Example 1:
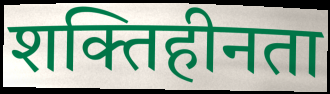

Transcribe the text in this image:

शक्तिहीनता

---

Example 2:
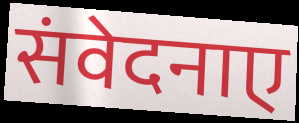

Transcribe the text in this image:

संवेदनाए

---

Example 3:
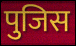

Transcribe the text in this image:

पुजिस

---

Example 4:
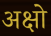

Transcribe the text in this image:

अक्षो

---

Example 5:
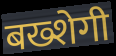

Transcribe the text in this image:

बख्शेगी